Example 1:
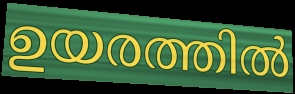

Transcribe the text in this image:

ഉയരത്തിൽ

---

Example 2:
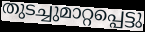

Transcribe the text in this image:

തുടച്ചുമാറ്റപ്പെട്ടു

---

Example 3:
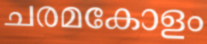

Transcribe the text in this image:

ചരമകോളം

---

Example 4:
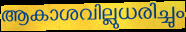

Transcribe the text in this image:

ആകാശവില്ലുധരിച്ചും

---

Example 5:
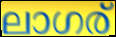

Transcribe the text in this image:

ലാഗര്